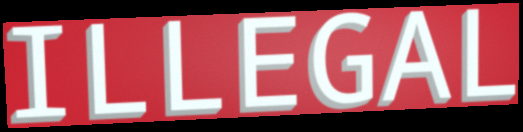
ILLEGAL